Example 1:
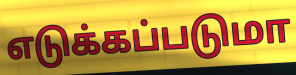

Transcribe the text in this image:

எடுக்கப்படுமா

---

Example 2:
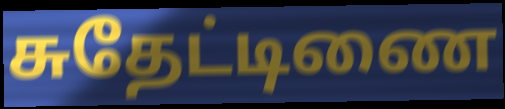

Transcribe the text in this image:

சுதேட்டிணை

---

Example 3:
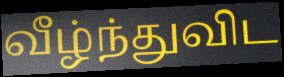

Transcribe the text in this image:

வீழ்ந்துவிட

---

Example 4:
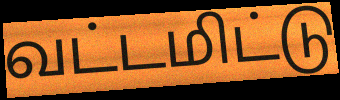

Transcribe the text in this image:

வட்டமிட்டு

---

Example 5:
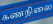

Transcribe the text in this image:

கணநிலை